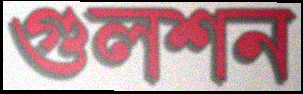
গুলশন